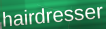
hairdresser